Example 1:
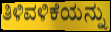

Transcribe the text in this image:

ತಿಳಿವಳಿಕೆಯನ್ನು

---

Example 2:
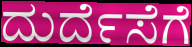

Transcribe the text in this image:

ದುರ್ದೆಸೆಗೆ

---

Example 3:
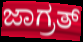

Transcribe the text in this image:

ಜಾಗ್ರತ್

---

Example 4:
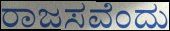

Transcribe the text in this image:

ರಾಜಸವೆಂದು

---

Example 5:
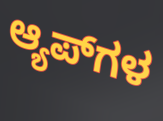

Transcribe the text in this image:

ಆ್ಯಪ್‌ಗಳ